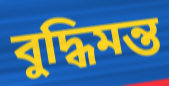
বুদ্ধিমন্ত